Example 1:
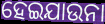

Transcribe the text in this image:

ହେଇଯାଉନା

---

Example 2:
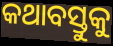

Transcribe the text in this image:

କଥାବସ୍ତୁକୁ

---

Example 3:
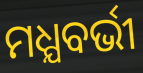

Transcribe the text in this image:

ମଧ୍ଯବର୍ଭୀ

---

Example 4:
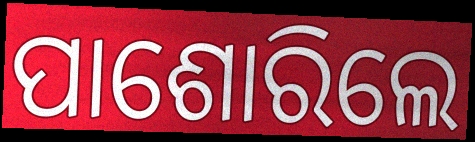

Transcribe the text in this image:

ପାଶୋରିଲେ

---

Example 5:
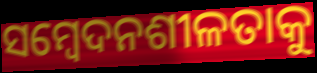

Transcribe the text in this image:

ସମ୍ବେଦନଶୀଳତାକୁ